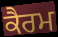
ਕੈਰਮ